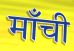
माँची